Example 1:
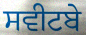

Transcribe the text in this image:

ਸਵੀਟਬੇ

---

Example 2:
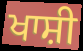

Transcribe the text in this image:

ਖਾਸ਼ੀ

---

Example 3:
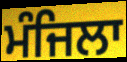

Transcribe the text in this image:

ਮੰਜਿਲਾ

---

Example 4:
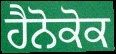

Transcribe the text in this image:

ਹੈਨੋਕੋਕ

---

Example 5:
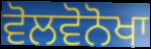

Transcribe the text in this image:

ਵੋਲਵੋਨੋਖਾ